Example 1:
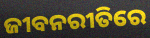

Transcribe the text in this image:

ଜୀବନରୀତିରେ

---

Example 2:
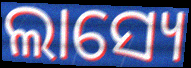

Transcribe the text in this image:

ଲାସ୍ୟେ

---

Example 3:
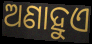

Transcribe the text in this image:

ଅଣାହୁଏ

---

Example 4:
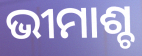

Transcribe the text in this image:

ଭୀମାଶ୍ଚ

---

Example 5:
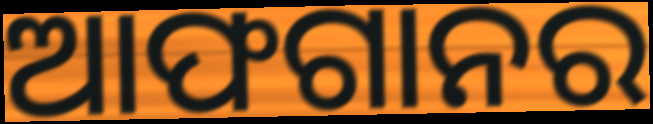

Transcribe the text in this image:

ଆଫଗାନର